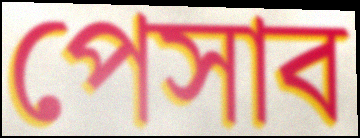
পেসাব